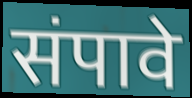
संपावे